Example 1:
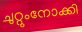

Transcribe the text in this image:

ചുറ്റുംനോക്കി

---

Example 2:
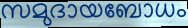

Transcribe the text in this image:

സമുദായബോധം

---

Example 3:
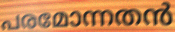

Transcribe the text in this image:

പരമോന്നതൻ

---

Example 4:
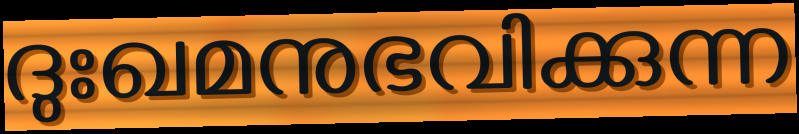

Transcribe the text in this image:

ദുഃഖമനുഭവിക്കുന്ന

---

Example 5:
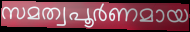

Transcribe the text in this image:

സമത്വപൂർണമായ